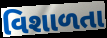
વિશાળતા